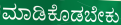
ಮಾಡಿಕೊಡಬೇಕು